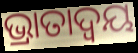
ଭ୍ରାତାଦ୍ୱୟ